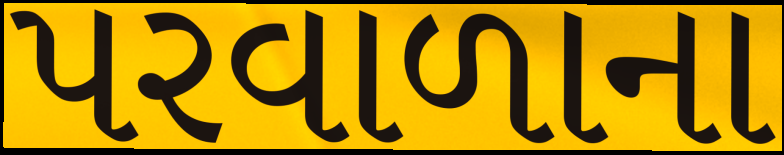
પરવાળાના